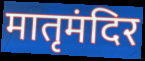
मातृमंदिर